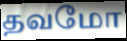
தவமோ